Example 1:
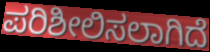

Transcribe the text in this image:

ಪರಿಶೀಲಿಸಲಾಗಿದೆ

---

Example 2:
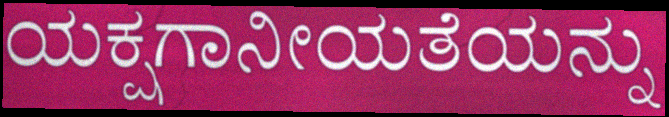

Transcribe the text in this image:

ಯಕ್ಷಗಾನೀಯತೆಯನ್ನು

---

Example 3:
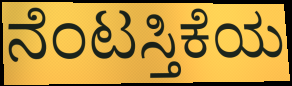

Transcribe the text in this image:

ನೆಂಟಸ್ತಿಕೆಯ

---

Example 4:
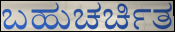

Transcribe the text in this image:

ಬಹುಚರ್ಚಿತ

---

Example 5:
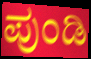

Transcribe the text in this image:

ಪುಂಡಿ